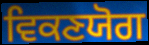
ਵਿਕਣਯੋਗ